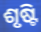
ଶୃଷ୍ଟି